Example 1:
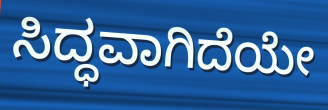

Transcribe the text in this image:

ಸಿದ್ಧವಾಗಿದೆಯೇ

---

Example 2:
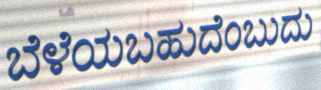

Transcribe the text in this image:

ಬೆಳೆಯಬಹುದೆಂಬುದು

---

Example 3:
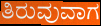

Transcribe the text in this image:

ತಿರುವುವಾಗ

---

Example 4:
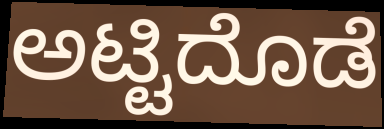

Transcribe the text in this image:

ಅಟ್ಟಿದೊಡೆ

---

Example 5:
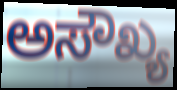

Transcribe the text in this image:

ಅಸೌಖ್ಯ